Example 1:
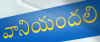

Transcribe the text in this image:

వానియందలి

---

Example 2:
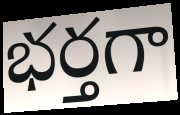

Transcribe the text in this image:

భర్తగా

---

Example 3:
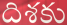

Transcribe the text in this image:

దిశకు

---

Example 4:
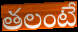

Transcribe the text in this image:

తలంటే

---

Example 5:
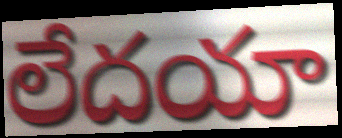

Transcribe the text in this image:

లేదయా